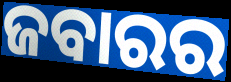
ଜବାରର